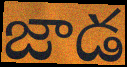
జాడ